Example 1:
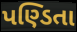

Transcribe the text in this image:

પણ્ડિતા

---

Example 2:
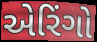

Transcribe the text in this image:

એરિંગો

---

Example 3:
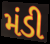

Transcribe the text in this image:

મંડી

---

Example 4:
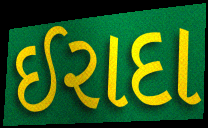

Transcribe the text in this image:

ઈરાદા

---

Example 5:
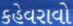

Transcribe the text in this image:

કહેવરાવો